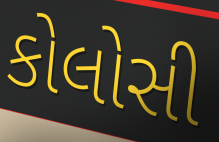
કોલોસી